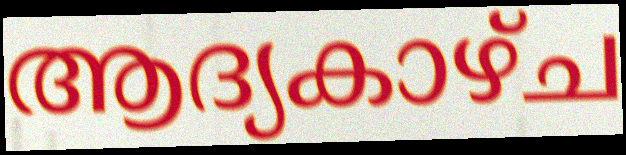
ആദ്യകാഴ്ച